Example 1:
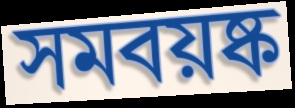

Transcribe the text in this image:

সমবয়ষ্ক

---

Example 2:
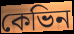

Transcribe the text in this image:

কেভিন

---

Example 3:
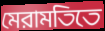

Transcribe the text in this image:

মেরামতিতে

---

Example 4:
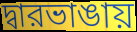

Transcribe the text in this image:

দ্বারভাঙায়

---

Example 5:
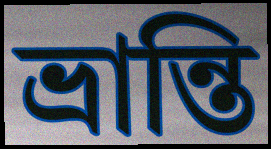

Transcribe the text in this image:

ভ্রান্তি